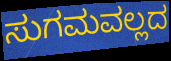
ಸುಗಮವಲ್ಲದ